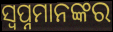
ସ୍ବପ୍ନମାନଙ୍କର